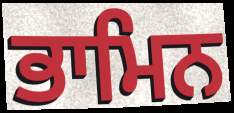
ਭਾਮਿਨ